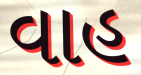
વાહ